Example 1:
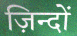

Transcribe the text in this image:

ज़िन्दों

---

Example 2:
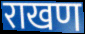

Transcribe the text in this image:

राखण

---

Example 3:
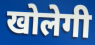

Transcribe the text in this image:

खोलेगी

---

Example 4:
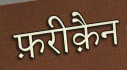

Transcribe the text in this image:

फ़रीक़ैन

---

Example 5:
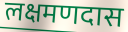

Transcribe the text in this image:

लक्षमणदास